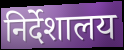
निर्देशालय